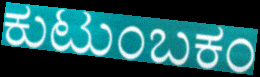
ಕುಟುಂಬಕಂ